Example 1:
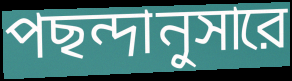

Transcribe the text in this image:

পছন্দানুসারে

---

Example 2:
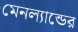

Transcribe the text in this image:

মেনল্যান্ডের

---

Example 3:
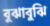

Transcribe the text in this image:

বুঝাবুঝি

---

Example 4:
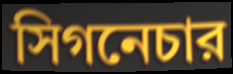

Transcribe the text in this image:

সিগনেচার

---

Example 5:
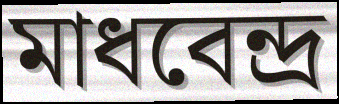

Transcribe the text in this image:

মাধবেন্দ্র